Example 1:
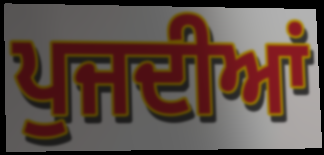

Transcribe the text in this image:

ਪੁਜਦੀਆਂ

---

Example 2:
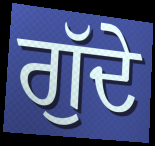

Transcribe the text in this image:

ਗੁੱਦੇ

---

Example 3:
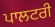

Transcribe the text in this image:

ਪਾਲਟਰੀ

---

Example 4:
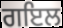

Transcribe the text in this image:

ਗਇਲ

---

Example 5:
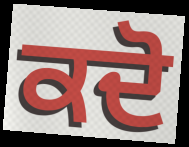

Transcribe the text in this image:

ਕਦੋ